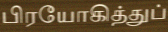
பிரயோகித்துப்